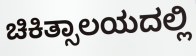
ಚಿಕಿತ್ಸಾಲಯದಲ್ಲಿ